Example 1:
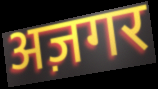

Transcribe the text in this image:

अज़गर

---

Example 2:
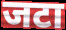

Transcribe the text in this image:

जटा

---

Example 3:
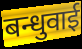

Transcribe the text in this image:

बन्धुवाई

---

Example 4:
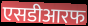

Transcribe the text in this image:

एसडीआरफ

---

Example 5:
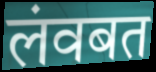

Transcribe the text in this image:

लंवबत